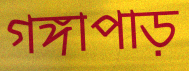
গঙ্গাপাড়